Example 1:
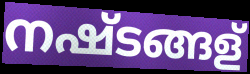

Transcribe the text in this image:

നഷ്ടങ്ങള്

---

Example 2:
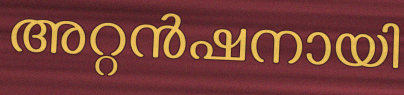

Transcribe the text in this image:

അറ്റൻഷനായി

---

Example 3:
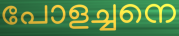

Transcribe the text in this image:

പോളച്ചനെ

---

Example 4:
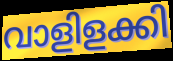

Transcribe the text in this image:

വാളിളക്കി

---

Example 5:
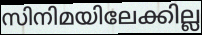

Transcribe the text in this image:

സിനിമയിലേക്കില്ല